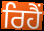
ਰਿਹੈਂ